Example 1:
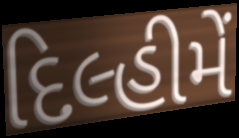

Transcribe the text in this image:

દિલ્હીમેં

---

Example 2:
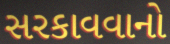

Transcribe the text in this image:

સરકાવવાનો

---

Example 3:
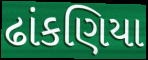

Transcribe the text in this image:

ઢાંકણિયા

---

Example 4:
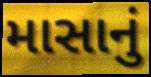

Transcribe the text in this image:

માસાનું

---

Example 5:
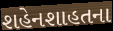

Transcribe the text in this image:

શહેનશાહતના